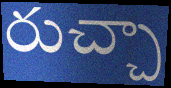
రుచ్చా